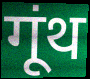
गूंथ